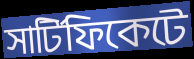
সার্টিফিকেটে